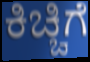
ಕಿಚ್ಚಿಗೆ